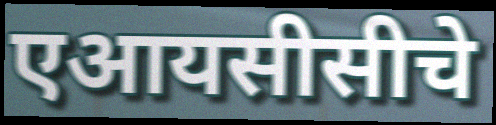
एआयसीसीचे